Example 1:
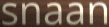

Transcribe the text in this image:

snaan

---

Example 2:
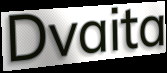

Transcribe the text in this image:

Dvaita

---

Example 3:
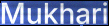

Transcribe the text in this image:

Mukhari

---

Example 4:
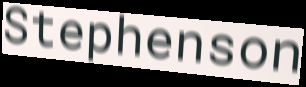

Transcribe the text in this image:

Stephenson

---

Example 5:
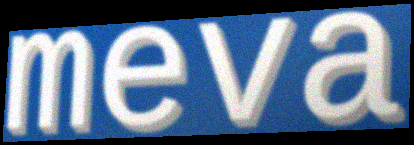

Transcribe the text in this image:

meva